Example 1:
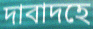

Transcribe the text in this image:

দাবাদহে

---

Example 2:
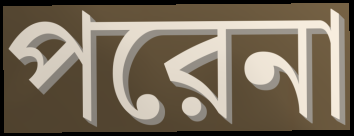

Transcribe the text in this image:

পরেনা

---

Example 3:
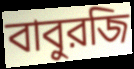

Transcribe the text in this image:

বাবুরজি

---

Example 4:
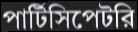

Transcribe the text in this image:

পার্টিসিপেটরি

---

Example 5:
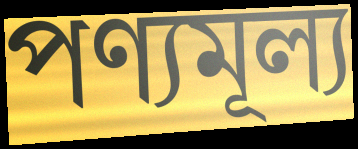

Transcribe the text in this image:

পণ্যমূল্য